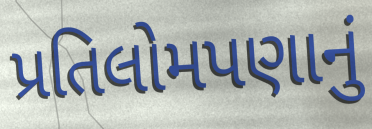
પ્રતિલોમપણાનું